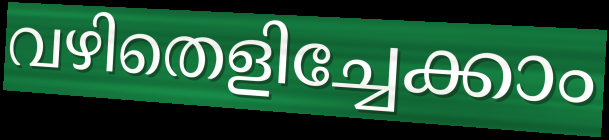
വഴിതെളിച്ചേക്കാം